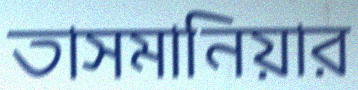
তাসমানিয়ার